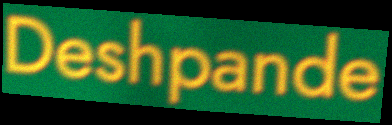
Deshpande